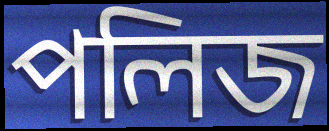
পলিজ